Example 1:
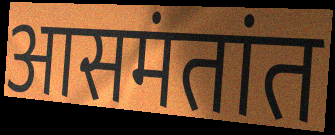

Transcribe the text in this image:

आसमंतांत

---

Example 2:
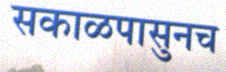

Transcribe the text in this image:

सकाळपासुनच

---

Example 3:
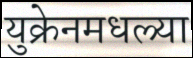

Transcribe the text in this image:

युक्रेनमधल्या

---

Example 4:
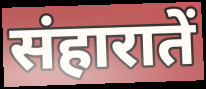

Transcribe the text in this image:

संहारातें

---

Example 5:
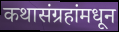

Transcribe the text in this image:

कथासंग्रहांमधून